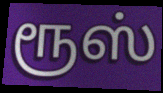
ரூஸ்